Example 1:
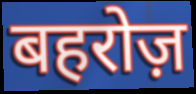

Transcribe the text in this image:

बहरोज़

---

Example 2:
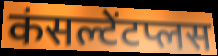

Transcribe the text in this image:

कंसल्टेंटप्लस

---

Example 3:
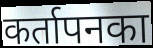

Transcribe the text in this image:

कर्तापनका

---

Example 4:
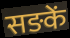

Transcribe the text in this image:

सङकें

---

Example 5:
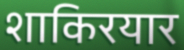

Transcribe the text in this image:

शाकिरयार